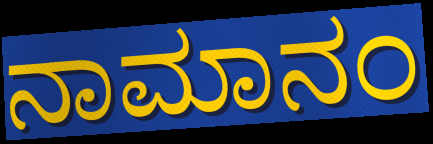
ನಾಮಾನಂ